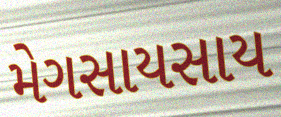
મેગસાયસાય